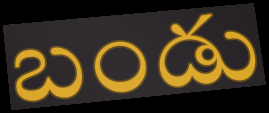
బండు